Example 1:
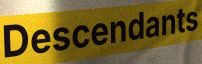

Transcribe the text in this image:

Descendants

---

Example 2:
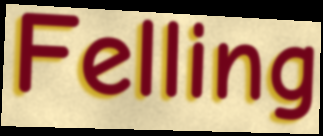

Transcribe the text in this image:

Felling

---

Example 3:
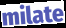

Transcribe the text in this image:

milate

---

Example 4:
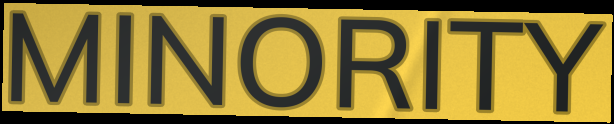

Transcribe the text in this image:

MINORITY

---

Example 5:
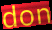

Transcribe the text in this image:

don